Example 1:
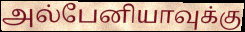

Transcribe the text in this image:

அல்பேனியாவுக்கு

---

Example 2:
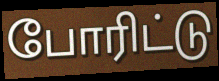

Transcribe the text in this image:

போரிட்டு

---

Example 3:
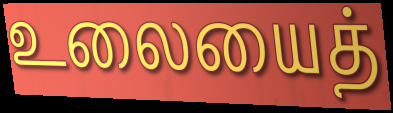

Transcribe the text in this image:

உலையைத்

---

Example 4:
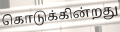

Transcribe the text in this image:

கொடுக்கின்றது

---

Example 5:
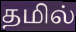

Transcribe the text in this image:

தமில்